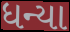
ધન્યા